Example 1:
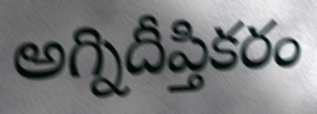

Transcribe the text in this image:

అగ్నిదీప్తికరం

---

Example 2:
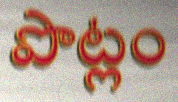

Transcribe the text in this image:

పొట్లం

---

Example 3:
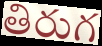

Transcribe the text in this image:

తిరుగ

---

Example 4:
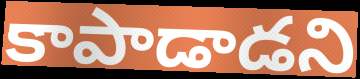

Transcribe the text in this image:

కాపాడాడని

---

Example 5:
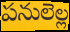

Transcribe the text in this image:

పనులెల్ల